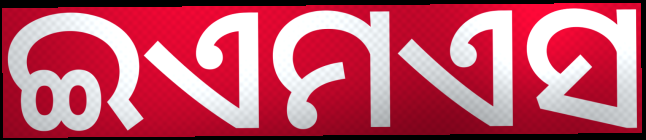
ଇଏମଏସ